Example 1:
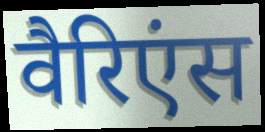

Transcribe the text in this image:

वैरिएंस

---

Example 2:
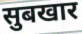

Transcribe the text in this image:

सुबखार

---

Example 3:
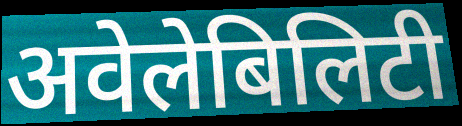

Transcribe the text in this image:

अवेलेबिलिटी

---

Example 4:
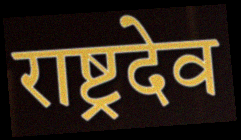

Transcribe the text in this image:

राष्ट्रदेव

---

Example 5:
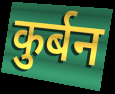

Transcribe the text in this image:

कुर्बन